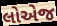
લોએજ